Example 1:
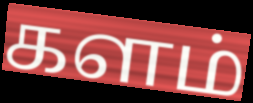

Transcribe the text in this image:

களம்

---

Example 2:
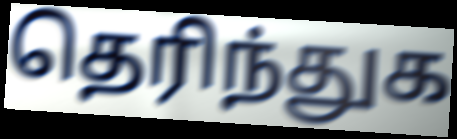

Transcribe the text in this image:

தெரிந்துக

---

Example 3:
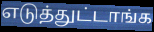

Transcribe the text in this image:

எடுத்துட்டாங்க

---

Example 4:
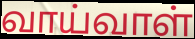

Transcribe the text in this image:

வாய்வாள்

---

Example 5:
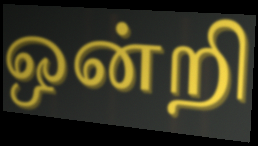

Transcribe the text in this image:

ஒன்றி